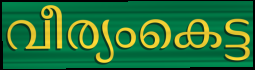
വീര്യംകെട്ട